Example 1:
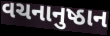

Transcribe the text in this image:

વચનાનુષ્ઠાન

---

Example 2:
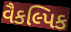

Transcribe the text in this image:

વૈકલ્પિક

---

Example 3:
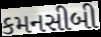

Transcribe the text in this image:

કમનસીબી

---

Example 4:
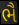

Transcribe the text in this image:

ભૈ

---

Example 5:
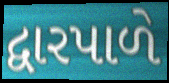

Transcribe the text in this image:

દ્વારપાળે